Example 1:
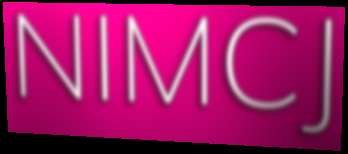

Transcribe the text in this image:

NIMCJ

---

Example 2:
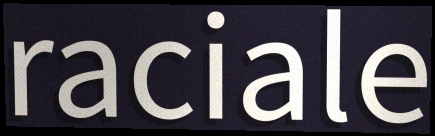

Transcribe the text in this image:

raciale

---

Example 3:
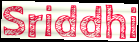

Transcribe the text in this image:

Sriddhi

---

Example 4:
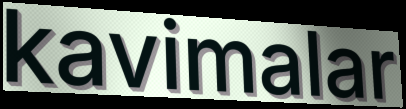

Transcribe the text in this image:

kavimalar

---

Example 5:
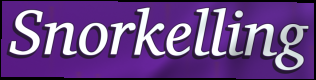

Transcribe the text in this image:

Snorkelling